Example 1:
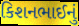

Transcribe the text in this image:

કિશનભાઈનું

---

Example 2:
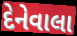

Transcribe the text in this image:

દેનેવાલા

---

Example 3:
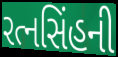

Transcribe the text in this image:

રત્નસિંહની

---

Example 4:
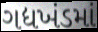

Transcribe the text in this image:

ગદ્યખંડમાં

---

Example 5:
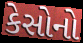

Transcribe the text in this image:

કેસોનો